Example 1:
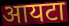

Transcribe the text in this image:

आयटा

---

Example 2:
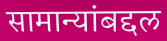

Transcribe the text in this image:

सामान्यांबद्दल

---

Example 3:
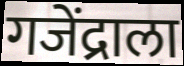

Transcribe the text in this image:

गजेंद्राला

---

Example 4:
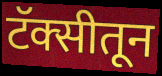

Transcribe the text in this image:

टॅक्‍सीतून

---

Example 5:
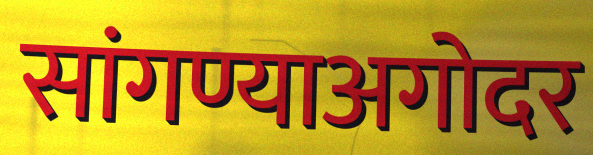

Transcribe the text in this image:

सांगण्याअगोदर